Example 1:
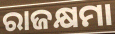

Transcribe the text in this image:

ରାଜକ୍ଷମା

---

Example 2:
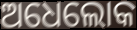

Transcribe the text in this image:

ଅଧେଲୋକ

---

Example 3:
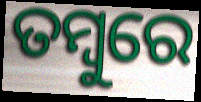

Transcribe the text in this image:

ତମ୍ବୁରେ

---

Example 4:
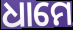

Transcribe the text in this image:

ଧାମେ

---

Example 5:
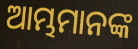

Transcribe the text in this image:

ଆମ୍ଭମାନଙ୍କ